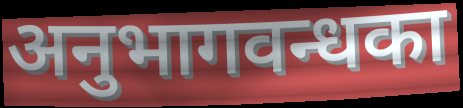
अनुभागवन्धका